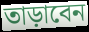
তাড়াবেন